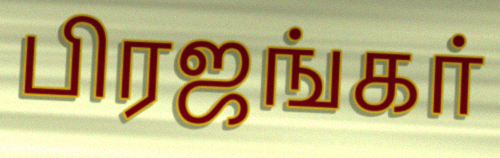
பிரஜங்கர்